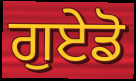
ਗੁਏਡੋ